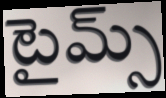
టైమ్స్